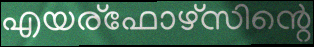
എയര്ഫോഴ്സിന്റെ